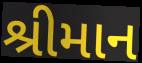
શ્રીમાન